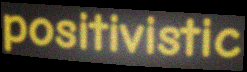
positivistic